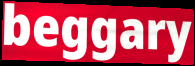
beggary